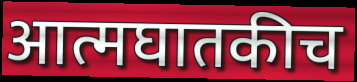
आत्मघातकीच